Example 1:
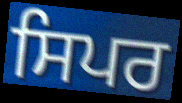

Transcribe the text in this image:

ਸਿਪਰ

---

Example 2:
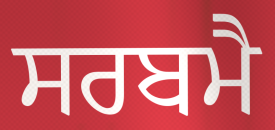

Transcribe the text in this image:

ਸਰਬਮੈ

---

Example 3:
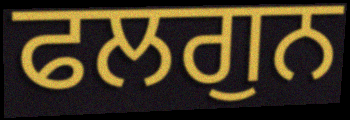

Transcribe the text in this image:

ਫਲਗੁਨ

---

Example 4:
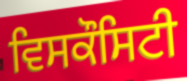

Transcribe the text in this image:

ਵਿਸਕੌਸਿਟੀ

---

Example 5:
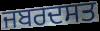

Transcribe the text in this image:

ਜਬਰਦਸਤ